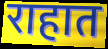
राहात